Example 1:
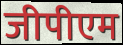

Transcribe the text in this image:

जीपीएम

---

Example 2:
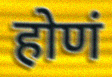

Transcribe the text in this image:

होणं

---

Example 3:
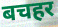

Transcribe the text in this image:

बचहर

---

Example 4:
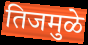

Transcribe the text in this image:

तिजमुळे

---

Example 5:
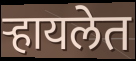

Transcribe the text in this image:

ऱ्हायलेत